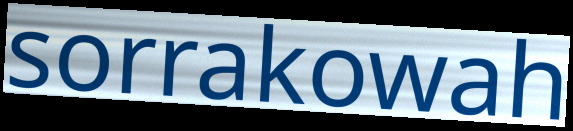
sorrakowah